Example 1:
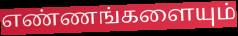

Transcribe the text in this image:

எண்ணங்களையும்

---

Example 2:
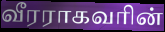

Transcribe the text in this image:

வீரராகவரின்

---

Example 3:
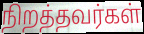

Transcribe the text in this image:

நிறத்தவர்கள்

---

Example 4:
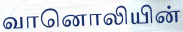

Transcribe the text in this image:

வானொலியின்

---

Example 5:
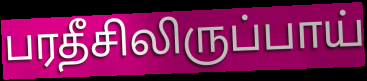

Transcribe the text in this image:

பரதீசிலிருப்பாய்